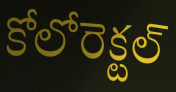
కోలోరెక్టల్